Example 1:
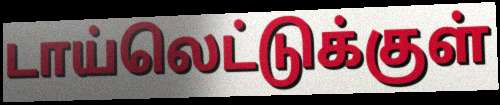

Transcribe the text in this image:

டாய்லெட்டுக்குள்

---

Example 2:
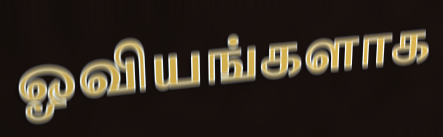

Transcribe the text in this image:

ஓவியங்களாக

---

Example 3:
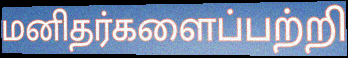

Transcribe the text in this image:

மனிதர்களைப்பற்றி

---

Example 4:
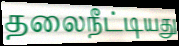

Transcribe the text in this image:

தலைநீட்டியது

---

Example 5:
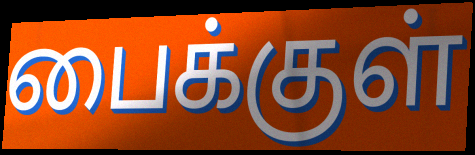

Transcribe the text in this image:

பைக்குள்